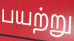
பயற்று